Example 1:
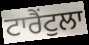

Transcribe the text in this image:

ਟਾਰੈਂਟੁਲਾ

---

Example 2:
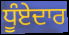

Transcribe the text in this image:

ਧੂੰਏਦਾਰ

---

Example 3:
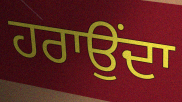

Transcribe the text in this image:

ਹਰਾਉਂਦਾ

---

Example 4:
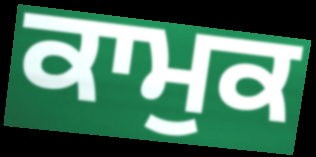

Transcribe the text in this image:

ਕਾਮੁਕ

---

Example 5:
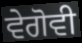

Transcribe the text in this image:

ਵੇਗੋਵੀ